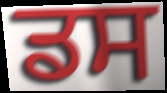
ਡਸ